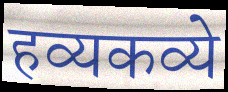
हव्यकव्ये